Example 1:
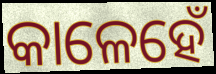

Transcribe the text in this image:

କାଳେହେଁ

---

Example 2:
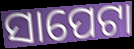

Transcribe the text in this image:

ସାପେଟା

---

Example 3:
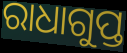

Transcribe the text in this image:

ରାଧାଗୁପ୍ତ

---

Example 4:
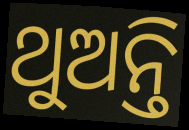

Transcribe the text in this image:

ଥୁଅନ୍ତି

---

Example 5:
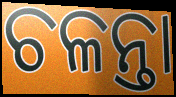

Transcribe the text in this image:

ଚଳନ୍ତା